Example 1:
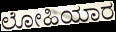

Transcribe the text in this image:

ಲೋಹಿಯಾರ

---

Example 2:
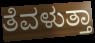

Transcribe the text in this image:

ತೆವಳುತ್ತಾ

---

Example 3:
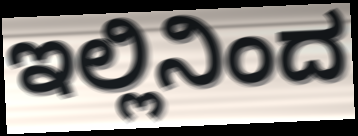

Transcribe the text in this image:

ಇಲ್ಲಿನಿಂದ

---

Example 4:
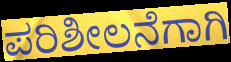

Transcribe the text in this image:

ಪರಿಶೀಲನೆಗಾಗಿ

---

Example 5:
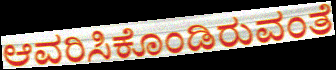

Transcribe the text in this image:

ಆವರಿಸಿಕೊಂಡಿರುವಂತೆ